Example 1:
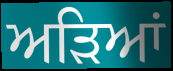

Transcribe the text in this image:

ਅੜਿਆਂ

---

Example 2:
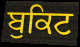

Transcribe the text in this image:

ਬੁਕਿਟ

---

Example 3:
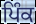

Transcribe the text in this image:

ਪਿੰਕ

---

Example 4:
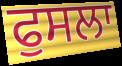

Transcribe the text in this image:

ਫੁਸਲਾ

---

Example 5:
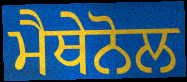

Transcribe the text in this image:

ਮੈਥੇਨੋਲ